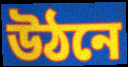
উঠনে